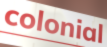
colonial